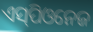
ଏସ୍‌ପିଓନେଜ